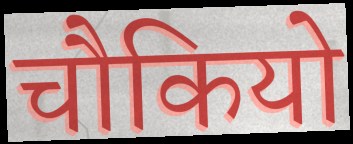
चौकियो